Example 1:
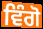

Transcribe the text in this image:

ਵਿੰਗੋ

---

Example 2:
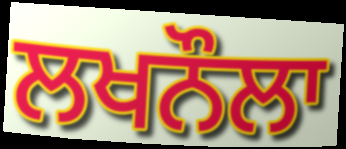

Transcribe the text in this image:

ਲਖਨੌਲਾ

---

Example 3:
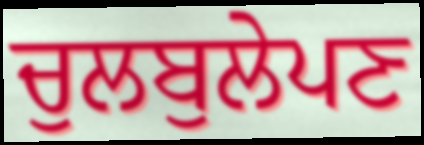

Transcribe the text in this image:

ਚੁਲਬੁਲੇਪਣ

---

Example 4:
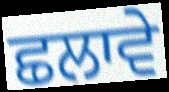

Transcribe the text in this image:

ਛਲਾਵੇ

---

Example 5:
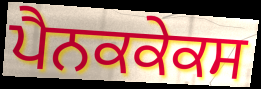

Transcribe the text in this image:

ਪੈਨਕਕੇਕਸ